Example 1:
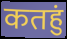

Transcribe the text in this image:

कतहुं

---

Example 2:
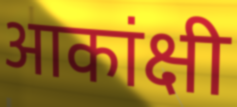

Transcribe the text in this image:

आकांक्षी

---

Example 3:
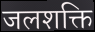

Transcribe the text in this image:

जलशक्ति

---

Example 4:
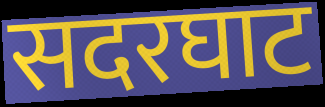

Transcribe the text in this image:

सदरघाट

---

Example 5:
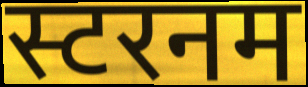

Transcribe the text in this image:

स्टरनम